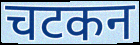
चटकन